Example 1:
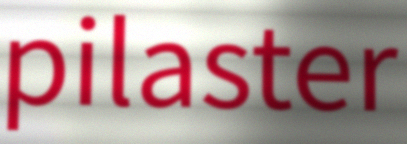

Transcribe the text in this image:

pilaster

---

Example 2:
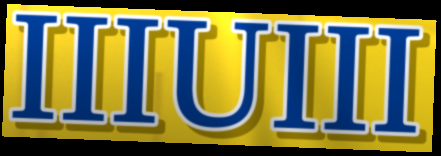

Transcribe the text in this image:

IIIUIII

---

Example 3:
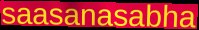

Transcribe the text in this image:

saasanasabha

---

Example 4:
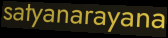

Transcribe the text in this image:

satyanarayana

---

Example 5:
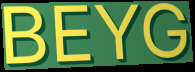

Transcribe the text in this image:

BEYG